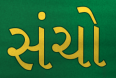
સંચો